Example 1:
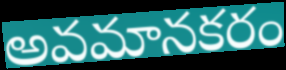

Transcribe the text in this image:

అవమానకరం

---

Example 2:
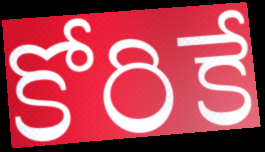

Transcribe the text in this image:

కోరికే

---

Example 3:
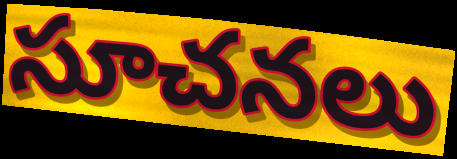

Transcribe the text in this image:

సూచనలు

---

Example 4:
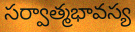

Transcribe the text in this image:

సర్వాత్మభావస్య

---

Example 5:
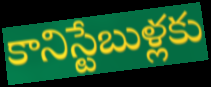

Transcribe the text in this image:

కానిస్టేబుళ్లకు